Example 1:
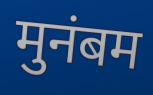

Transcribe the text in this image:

मुनंबम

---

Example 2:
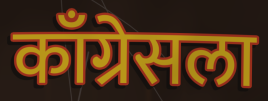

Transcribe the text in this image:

काँग्रेसला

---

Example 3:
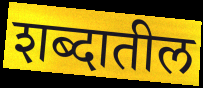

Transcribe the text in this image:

शब्दातील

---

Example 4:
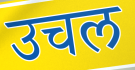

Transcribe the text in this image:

उचल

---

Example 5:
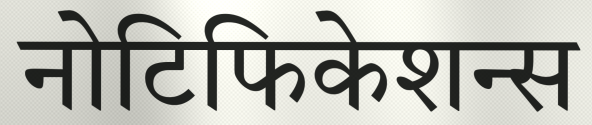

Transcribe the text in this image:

नोटिफिकेशन्स